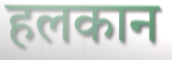
हलकान